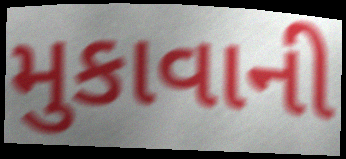
મુકાવાની